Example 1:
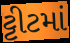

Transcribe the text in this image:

ટ્ટીટમાં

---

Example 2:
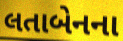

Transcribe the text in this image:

લતાબેનના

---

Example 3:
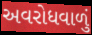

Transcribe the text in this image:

અવરોધવાળું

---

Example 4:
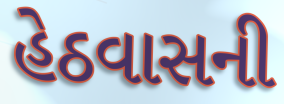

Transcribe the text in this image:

હેઠવાસની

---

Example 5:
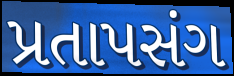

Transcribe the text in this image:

પ્રતાપસંગ